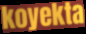
koyekta